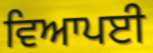
ਵਿਆਪਈ